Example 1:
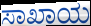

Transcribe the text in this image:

ಸಾಖಾಯ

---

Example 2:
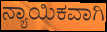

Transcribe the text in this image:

ನ್ಯಾಯಿಕವಾಗಿ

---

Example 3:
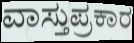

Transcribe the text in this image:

ವಾಸ್ತುಪ್ರಕಾರ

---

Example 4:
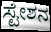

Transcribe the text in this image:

ಸ್ಟೇಶನ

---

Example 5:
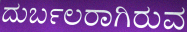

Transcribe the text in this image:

ದುರ್ಬಲರಾಗಿರುವ